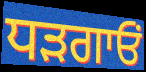
ਧੜਗਾਓਂ